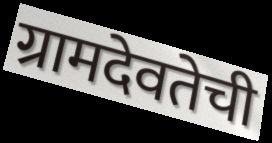
ग्रामदेवतेची